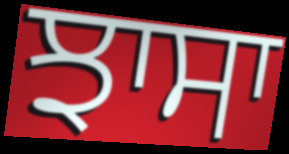
ਝਾਸਾ